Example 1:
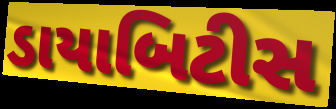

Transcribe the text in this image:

ડાયાબિટીસ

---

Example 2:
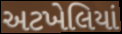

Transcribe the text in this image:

અટખેલિયાં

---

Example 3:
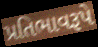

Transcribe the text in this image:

પ્રતિભાવરૂપે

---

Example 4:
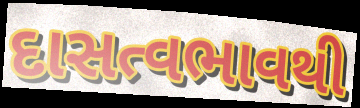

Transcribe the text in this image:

દાસત્વભાવથી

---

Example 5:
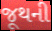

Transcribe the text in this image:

જૂથની